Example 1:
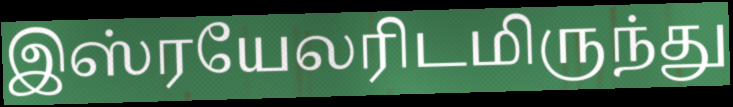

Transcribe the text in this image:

இஸ்ரயேலரிடமிருந்து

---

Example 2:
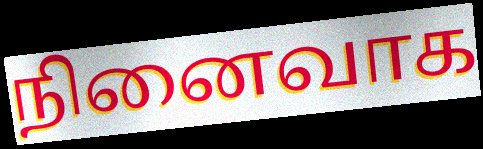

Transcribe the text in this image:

நினைவாக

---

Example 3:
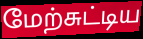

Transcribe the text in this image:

மேற்சுட்டிய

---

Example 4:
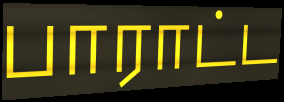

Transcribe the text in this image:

பாராட்ட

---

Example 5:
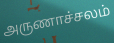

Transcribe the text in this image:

அருணாச்சலம்